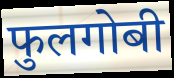
फुलगोबी